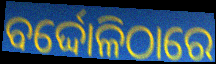
ବର୍ଦ୍ଦୋଳିଠାରେ